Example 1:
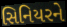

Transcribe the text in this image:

સિનિયરને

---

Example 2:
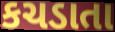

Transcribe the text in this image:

કચડાતા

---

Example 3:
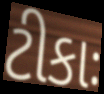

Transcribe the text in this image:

ટીકાઃ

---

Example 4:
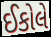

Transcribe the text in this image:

ઈકોલે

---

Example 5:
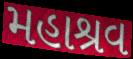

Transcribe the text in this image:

મહાશ્રવ